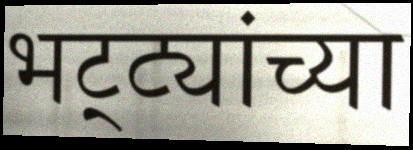
भट्ट्यांच्या